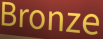
Bronze